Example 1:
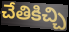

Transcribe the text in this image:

చేతికిచ్చి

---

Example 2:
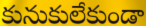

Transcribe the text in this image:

కునుకులేకుండా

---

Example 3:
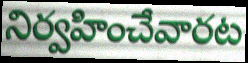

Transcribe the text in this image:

నిర్వహించేవారట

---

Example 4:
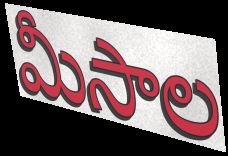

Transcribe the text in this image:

మీసాల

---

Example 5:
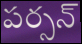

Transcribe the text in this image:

పర్సన్